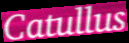
Catullus